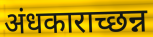
अंधकाराच्छन्न